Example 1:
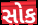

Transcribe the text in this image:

સોક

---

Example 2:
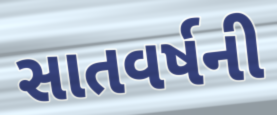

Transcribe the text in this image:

સાતવર્ષની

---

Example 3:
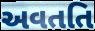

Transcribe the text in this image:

અવતતિ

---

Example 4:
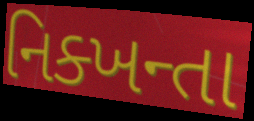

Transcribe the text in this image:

નિક્ખન્તા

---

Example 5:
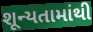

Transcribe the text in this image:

શૂન્યતામાંથી